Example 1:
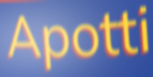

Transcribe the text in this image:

Apotti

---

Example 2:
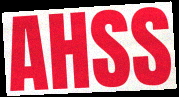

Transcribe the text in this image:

AHSS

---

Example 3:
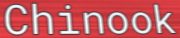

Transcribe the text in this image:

Chinook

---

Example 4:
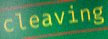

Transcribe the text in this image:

cleaving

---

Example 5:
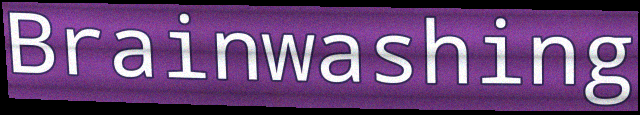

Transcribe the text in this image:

Brainwashing